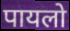
पायलो